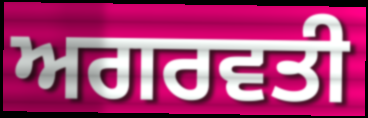
ਅਗਰਵਤੀ